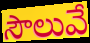
సౌలువే